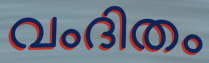
വംദിതം